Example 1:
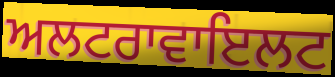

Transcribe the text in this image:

ਅਲਟਰਾਵਾਇਲਟ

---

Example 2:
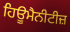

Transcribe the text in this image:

ਹਿਊਮੈਨੀਟੀਜ਼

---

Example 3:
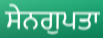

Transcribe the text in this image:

ਸੇਨਗੁਪਤਾ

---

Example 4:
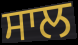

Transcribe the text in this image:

ਸਾਲ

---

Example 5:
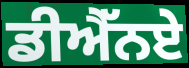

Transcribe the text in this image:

ਡੀਐੱਨਏ